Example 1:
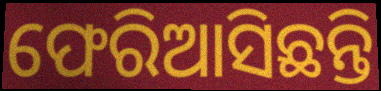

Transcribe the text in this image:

ଫେରିଆସିଛନ୍ତି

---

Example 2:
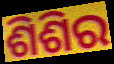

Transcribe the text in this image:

ଶିଶିର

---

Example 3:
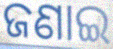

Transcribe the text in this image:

ଜଣାଇ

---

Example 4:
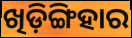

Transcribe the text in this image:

ଖିଡ଼ିଙ୍ଗିହାର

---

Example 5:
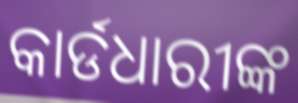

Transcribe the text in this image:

କାର୍ଡଧାରୀଙ୍କ